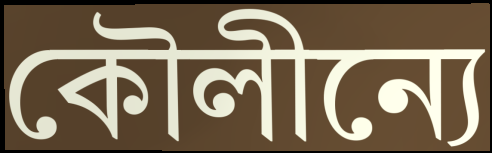
কৌলীন্যে